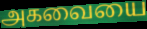
அகவையை